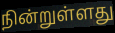
நின்றுள்ளது